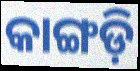
କାଙ୍ଗଡ଼ି